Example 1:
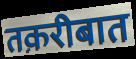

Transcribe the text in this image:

तक़रीबात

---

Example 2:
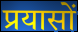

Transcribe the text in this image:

प्रयासों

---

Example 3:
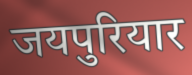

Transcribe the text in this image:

जयपुरियार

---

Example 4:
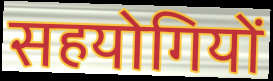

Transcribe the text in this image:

सहयोगियों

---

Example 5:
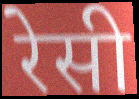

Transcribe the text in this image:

रेसी